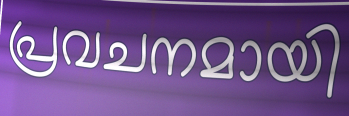
പ്രവചനമായി